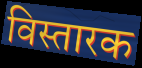
विस्तारक